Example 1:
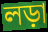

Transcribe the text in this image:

লড়া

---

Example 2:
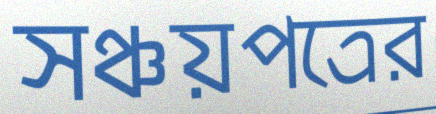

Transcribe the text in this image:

সঞ্চয়পত্রের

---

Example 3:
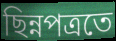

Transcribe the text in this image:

ছিন্নপত্রতে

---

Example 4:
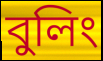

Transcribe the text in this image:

বুলিং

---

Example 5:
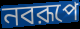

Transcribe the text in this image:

নবরূপে